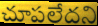
చూపలేదని